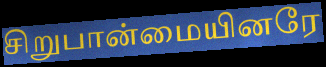
சிறுபான்மையினரே